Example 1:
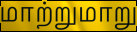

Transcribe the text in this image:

மாற்றுமாறு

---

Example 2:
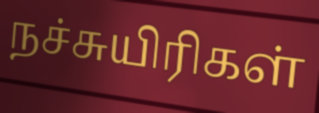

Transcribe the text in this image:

நச்சுயிரிகள்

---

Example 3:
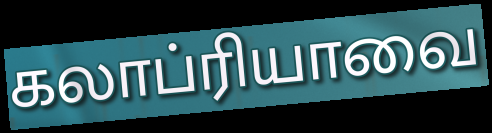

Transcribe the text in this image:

கலாப்ரியாவை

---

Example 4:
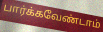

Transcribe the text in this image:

பார்க்கவேண்டாம்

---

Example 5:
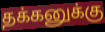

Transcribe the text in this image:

தக்கனுக்கு